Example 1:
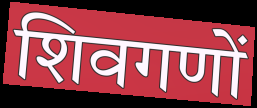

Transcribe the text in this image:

शिवगणों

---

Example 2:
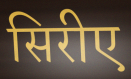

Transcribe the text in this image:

सिरीए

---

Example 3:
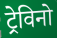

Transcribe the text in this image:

ट्रेविनो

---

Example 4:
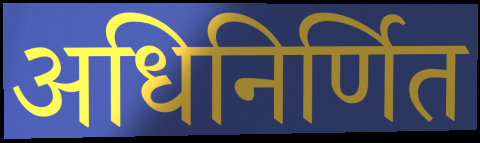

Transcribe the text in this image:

अधिनिर्णित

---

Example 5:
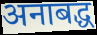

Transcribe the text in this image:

अनाबद्ध